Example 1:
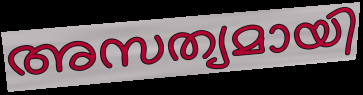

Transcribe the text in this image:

അസത്യമായി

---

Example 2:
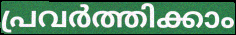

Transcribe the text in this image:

പ്രവർത്തിക്കാം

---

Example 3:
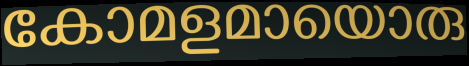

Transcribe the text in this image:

കോമളമായൊരു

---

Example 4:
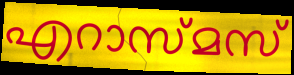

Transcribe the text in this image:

എറാസ്മസ്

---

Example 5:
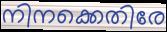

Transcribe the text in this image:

നിനക്കെതിരേ